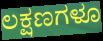
ಲಕ್ಷಣಗಳೂ